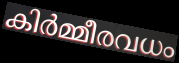
കിർമ്മീരവധം